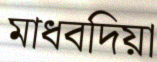
মাধবদিয়া